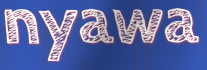
nyawa